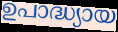
ഉപാദ്ധ്യായ